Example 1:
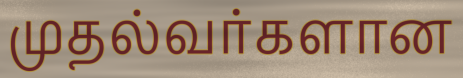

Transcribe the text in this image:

முதல்வர்களான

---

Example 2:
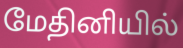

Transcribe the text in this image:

மேதினியில்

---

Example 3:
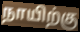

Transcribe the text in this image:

நாயிற்கு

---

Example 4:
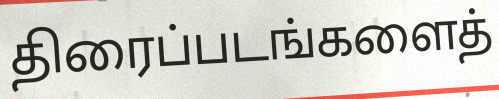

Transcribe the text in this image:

திரைப்படங்களைத்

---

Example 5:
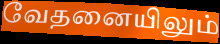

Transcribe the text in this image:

வேதனையிலும்